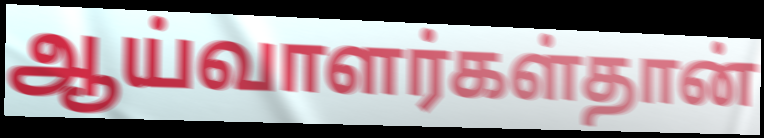
ஆய்வாளர்கள்தான்